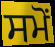
ਸਮੋਂ